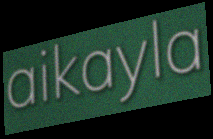
aikayla